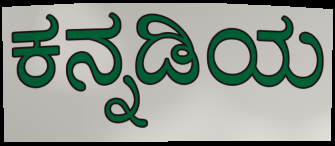
ಕನ್ನಡಿಯ